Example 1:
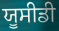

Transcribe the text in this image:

ਯੂਸੀਡੀ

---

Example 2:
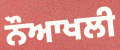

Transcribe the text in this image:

ਨੌਆਖਲੀ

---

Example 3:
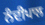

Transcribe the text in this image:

ਨੰਦੀਪਾਲ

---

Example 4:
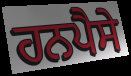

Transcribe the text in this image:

ਹਨਪੈਸੇ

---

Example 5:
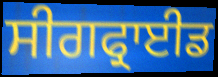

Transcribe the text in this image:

ਸੀਗਫ੍ਰਾਈਡ